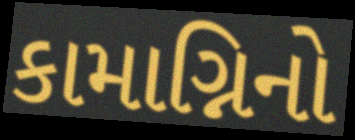
કામાગ્નિનો